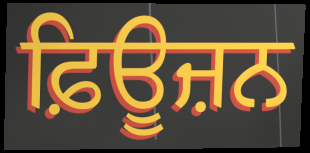
ਫ਼ਿਊਜ਼ਨ